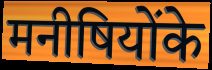
मनीषियोंके